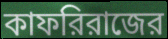
কাফরিরাজের